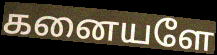
கனையளே